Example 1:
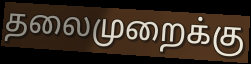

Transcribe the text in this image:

தலைமுறைக்கு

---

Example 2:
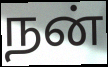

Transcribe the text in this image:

நன்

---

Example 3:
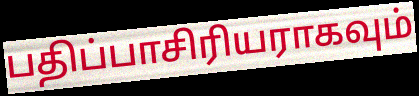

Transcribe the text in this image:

பதிப்பாசிரியராகவும்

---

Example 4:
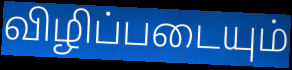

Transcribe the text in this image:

விழிப்படையும்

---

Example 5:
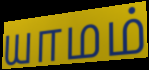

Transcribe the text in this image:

யாமம்